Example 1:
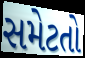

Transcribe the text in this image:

સમેટતો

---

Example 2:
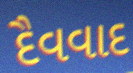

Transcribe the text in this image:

દૈવવાદ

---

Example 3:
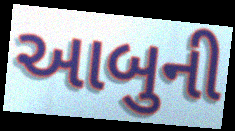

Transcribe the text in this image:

આબુની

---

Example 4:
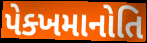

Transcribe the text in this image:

પેક્ખમાનોતિ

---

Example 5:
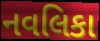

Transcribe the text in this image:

નવલિકા